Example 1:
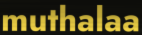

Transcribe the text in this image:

muthalaa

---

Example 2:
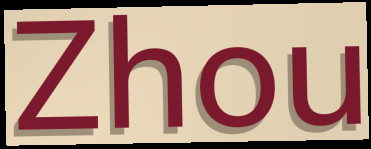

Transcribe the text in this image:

Zhou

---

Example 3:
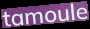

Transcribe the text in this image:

tamoule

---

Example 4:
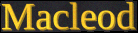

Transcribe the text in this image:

Macleod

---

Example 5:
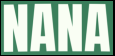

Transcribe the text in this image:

NANA